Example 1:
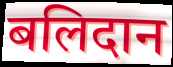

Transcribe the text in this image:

बलिदान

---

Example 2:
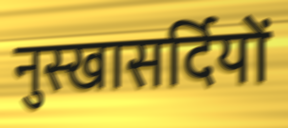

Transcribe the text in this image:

नुस्खासर्दियों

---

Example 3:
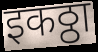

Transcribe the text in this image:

इकठ्ठा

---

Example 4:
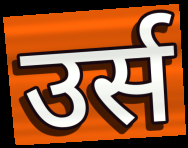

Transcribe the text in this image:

उर्स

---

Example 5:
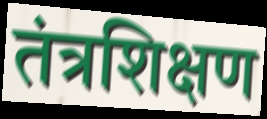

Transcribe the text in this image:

तंत्रशिक्षण